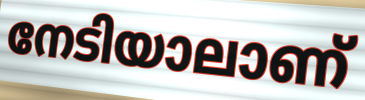
നേടിയാലാണ്